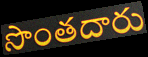
సొంతదారు